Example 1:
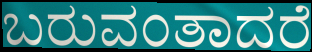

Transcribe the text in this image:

ಬರುವಂತಾದರೆ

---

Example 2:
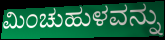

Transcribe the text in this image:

ಮಿಂಚುಹುಳವನ್ನು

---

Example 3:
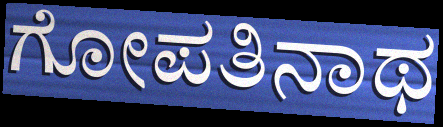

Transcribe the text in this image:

ಗೋಪತಿನಾಥ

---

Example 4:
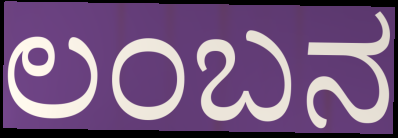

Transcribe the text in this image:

ಲಂಬನ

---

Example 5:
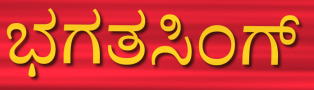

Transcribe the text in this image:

ಭಗತಸಿಂಗ್